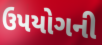
ઉપયોગની